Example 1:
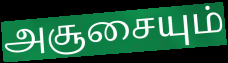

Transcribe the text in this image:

அசூசையும்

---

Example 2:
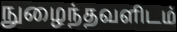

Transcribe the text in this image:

நுழைந்தவளிடம்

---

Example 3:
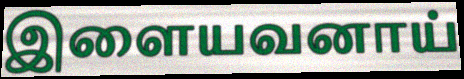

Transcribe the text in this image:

இளையவனாய்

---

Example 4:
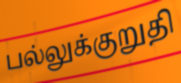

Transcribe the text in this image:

பல்லுக்குறுதி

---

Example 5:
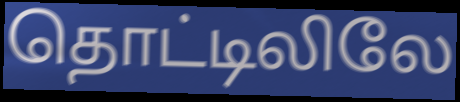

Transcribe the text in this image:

தொட்டிலிலே